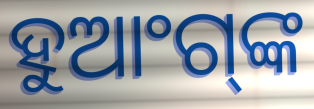
ହୁଆଂଗ୍‍ଙ୍କ